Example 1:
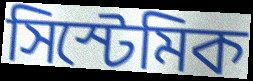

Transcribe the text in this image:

সিস্টেমিক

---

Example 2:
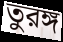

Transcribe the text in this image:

তুরঙ্গ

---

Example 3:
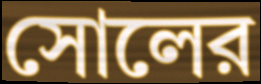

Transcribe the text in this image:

সোলের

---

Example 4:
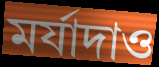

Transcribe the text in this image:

মর্যাদাও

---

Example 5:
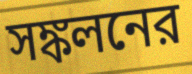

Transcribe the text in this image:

সঙ্কলনের